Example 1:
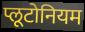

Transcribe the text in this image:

प्लूटोनियम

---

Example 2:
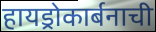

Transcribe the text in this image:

हायड्रोकार्बनाची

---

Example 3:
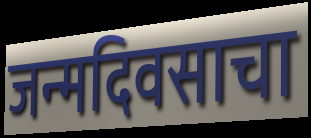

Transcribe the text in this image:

जन्मदिवसाचा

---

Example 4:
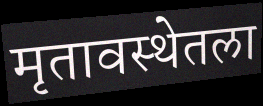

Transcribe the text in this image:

मृतावस्थेतला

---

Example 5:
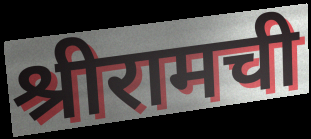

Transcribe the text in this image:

श्रीरामची